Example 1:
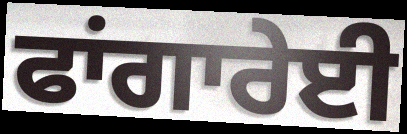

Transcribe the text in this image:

ਫਾਂਗਾਰੇਈ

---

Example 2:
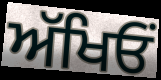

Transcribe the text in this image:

ਅੱਖਿਓਂ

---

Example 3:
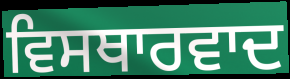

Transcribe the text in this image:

ਵਿਸਥਾਰਵਾਦ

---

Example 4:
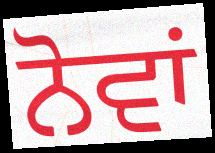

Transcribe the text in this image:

ਨੋਵਾਂ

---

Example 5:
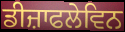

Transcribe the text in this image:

ਡੀਜ਼ਾਫਲੇਵਿਨ